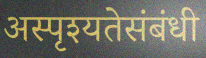
अस्पृश्यतेसंबंधी